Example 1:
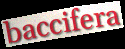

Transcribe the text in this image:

baccifera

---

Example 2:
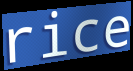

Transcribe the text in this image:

rice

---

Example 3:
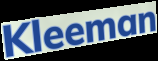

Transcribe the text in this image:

Kleeman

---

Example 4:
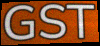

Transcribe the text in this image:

GST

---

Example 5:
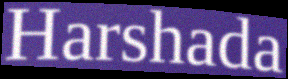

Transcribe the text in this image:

Harshada